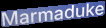
Marmaduke